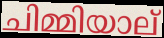
ചിമ്മിയാല്